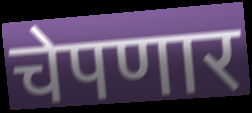
चेपणार